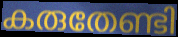
കരുതേണ്ടി